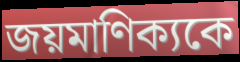
জয়মাণিক্যকে